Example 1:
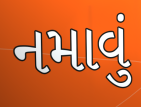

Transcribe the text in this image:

નમાવું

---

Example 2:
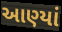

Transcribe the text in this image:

આણ્યાં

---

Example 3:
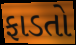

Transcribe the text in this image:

ફાડતો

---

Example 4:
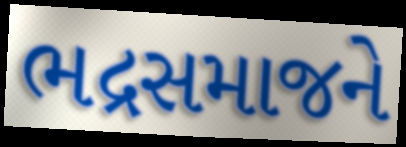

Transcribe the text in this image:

ભદ્રસમાજને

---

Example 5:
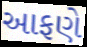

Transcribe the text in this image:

આફણે